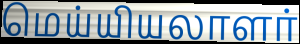
மெய்யியலாளர்